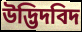
উদ্ভিদবিদ